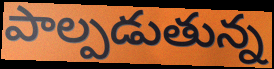
పాల్పడుతున్న